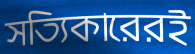
সত্যিকারেরই